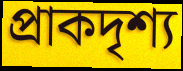
প্রাকদৃশ্য